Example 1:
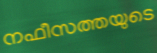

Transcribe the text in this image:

നഫീസത്തയുടെ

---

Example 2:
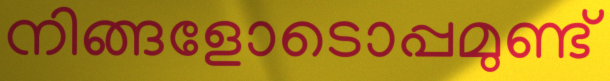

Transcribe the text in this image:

നിങ്ങളോടൊപ്പമുണ്ട്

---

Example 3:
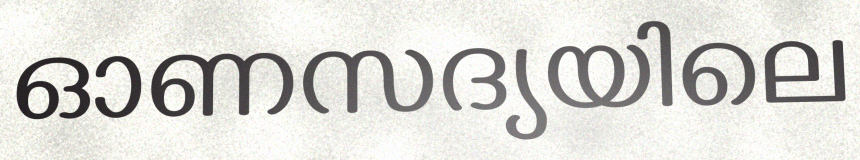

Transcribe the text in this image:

ഓണസദ്യയിലെ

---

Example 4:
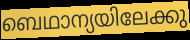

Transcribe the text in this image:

ബെഥാന്യയിലേക്കു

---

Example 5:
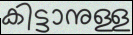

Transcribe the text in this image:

കിട്ടാനുള്ള